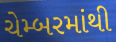
ચેમ્બરમાંથી